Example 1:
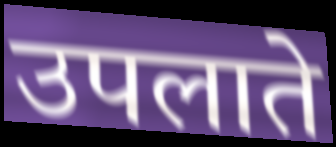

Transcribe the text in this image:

उपलाते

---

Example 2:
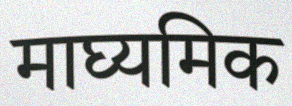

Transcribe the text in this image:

माघ्यमिक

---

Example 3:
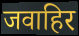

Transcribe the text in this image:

जवाहिर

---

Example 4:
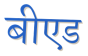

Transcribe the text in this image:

बीएड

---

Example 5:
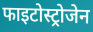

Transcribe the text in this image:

फाइटोस्ट्रोजेन